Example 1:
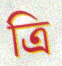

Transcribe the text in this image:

ত্ৰি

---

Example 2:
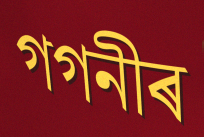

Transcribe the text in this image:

গগনীৰ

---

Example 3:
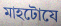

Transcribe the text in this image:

মাহটোযে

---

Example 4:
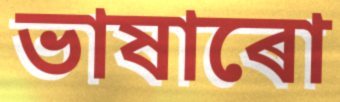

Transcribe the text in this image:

ভাষাৰো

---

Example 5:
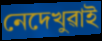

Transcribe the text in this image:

নেদেখুৱাই